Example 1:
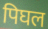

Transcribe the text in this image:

पिघल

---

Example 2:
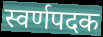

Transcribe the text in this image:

स्वर्णपदक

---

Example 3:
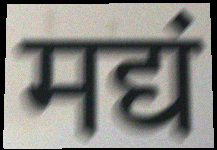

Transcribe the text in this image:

मद्यं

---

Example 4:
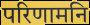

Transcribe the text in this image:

परिणामनि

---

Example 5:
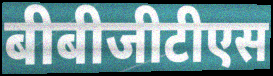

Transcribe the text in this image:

बीबीजीटीएस